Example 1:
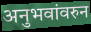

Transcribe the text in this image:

अनुभवांवरुन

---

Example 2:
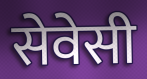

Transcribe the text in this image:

सेवेसी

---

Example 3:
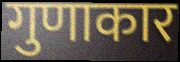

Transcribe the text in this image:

गुणाकार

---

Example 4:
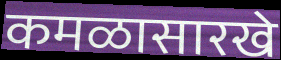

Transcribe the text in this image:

कमळासारखे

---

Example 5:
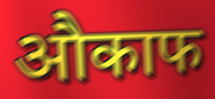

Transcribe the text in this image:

औकाफ